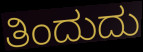
ತಿಂದುದು